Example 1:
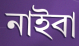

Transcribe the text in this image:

নাইবা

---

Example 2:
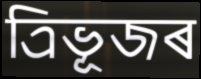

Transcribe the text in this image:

ত্ৰিভূজৰ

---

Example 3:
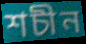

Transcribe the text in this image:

শচীন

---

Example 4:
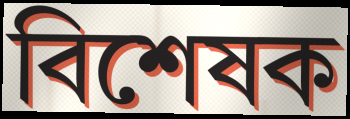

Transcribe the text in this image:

বিশেষক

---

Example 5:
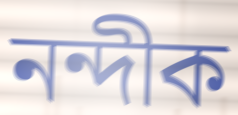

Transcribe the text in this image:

নন্দীক